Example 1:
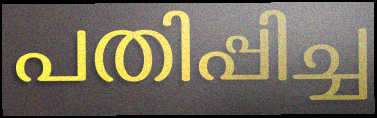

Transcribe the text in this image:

പതിപ്പിച്ച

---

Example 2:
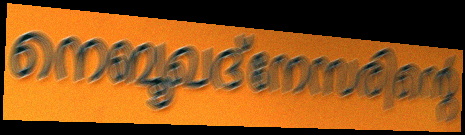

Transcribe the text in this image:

നെബൂഖദ്നേസരിന്റെ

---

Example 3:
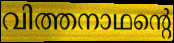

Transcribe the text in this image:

വിത്തനാഥന്റെ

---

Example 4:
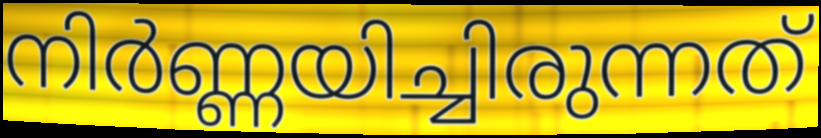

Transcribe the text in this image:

നിർണ്ണയിച്ചിരുന്നത്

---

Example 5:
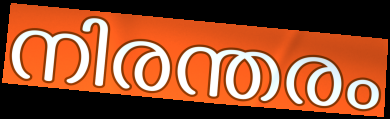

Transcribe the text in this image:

നിരന്തരം